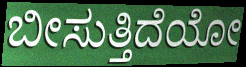
ಬೀಸುತ್ತಿದೆಯೋ